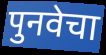
पुनवेचा